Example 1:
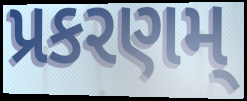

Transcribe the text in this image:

પ્રકરણમ્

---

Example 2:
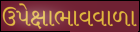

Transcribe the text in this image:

ઉપેક્ષાભાવવાળા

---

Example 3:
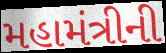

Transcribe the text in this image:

મહામંત્રીની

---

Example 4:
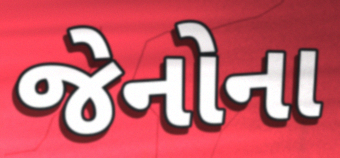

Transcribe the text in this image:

જેનોના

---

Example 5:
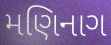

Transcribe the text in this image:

મણિનાગ